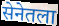
सेनेतला